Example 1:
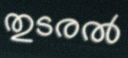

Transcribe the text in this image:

തുടരൽ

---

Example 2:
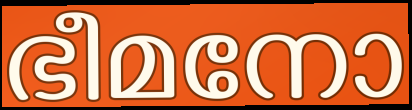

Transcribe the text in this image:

ഭീമനോ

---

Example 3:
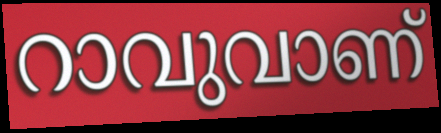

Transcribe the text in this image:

റാവുവാണ്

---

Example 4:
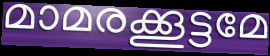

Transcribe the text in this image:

മാമരക്കൂട്ടമേ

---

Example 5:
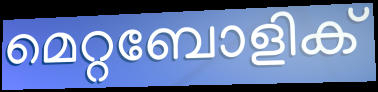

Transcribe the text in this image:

മെറ്റബോളിക്